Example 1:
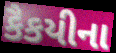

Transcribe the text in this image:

કૈકયીના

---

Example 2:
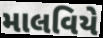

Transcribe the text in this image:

માલવિયે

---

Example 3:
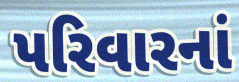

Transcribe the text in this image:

પરિવારનાં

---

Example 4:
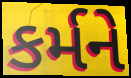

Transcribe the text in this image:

કર્મને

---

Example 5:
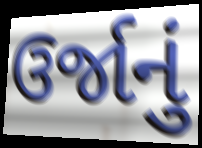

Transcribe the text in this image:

ઉર્જાનું